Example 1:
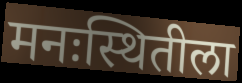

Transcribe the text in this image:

मनःस्थितीला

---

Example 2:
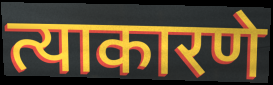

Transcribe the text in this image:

त्याकारणे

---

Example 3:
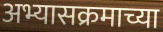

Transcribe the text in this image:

अभ्यासक्रमाच्या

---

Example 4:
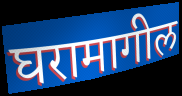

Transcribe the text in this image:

घरामागील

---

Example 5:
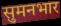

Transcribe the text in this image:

सुमनभार